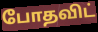
போதவிட்